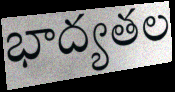
భాద్యతల